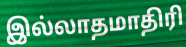
இல்லாதமாதிரி